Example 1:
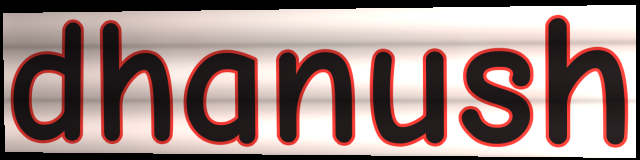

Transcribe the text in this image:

dhanush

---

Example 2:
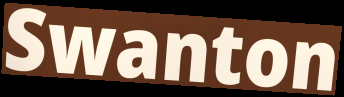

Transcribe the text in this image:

Swanton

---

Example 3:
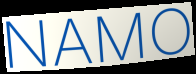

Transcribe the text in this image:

NAMO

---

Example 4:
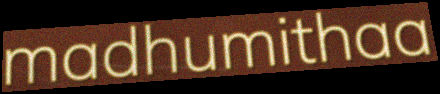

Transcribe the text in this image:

madhumithaa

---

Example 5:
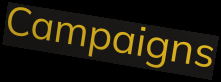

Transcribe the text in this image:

Campaigns